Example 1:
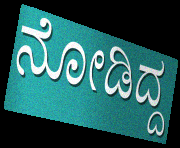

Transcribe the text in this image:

ನೋಡಿದ್ದ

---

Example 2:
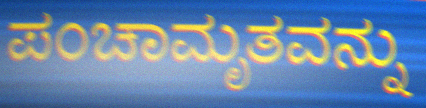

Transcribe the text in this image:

ಪಂಚಾಮೃತವನ್ನು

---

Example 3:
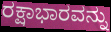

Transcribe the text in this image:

ರಕ್ಷಾಭಾರವನ್ನು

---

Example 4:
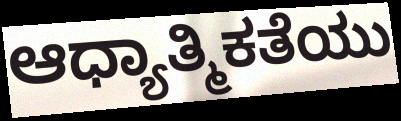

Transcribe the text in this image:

ಆಧ್ಯಾತ್ಮಿಕತೆಯು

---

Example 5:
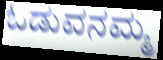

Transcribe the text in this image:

ಓಡುವನಮ್ಮ